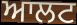
ਆਲਟ